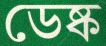
ডেষ্ক